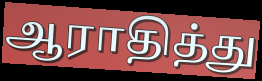
ஆராதித்து